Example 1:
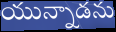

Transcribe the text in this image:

యున్నాడను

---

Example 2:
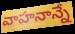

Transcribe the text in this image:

వాహనాన్నే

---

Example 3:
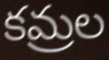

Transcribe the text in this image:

కమ్రల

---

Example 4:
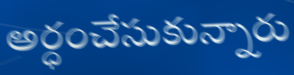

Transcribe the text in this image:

అర్ధంచేసుకున్నారు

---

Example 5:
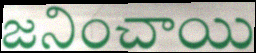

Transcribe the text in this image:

జనించాయి